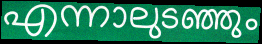
എന്നാലുടഞ്ഞും